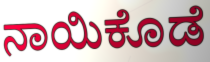
ನಾಯಿಕೊಡೆ